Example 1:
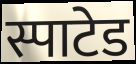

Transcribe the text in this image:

स्पाटेड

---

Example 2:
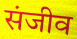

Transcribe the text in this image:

संजीव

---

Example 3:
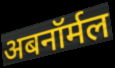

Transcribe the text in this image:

अबनॉर्मल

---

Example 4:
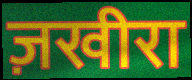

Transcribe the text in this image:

ज़खीरा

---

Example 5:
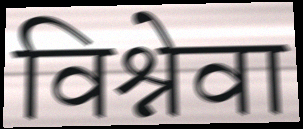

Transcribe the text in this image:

विश्नेवा